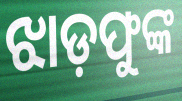
ଝାଡ଼ଫୁଙ୍କ